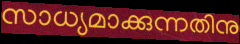
സാധ്യമാക്കുന്നതിനു